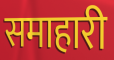
समाहारी